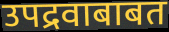
उपद्रवाबाबत